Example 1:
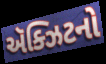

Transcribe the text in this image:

ઍક્ઝિટનો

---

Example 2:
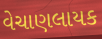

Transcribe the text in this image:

વેચાણલાયક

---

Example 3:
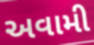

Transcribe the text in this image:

અવામી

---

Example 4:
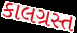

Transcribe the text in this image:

કાલગ્રસ્ત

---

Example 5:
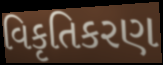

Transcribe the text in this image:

વિકૃતિકરણ